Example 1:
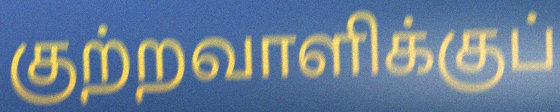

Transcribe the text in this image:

குற்றவாளிக்குப்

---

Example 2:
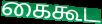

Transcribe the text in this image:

கைகூட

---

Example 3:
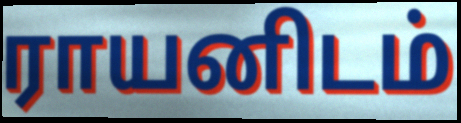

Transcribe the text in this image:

ராயனிடம்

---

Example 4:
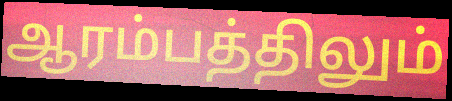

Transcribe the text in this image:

ஆரம்பத்திலும்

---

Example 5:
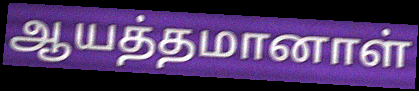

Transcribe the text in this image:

ஆயத்தமானாள்